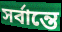
সর্বান্তে